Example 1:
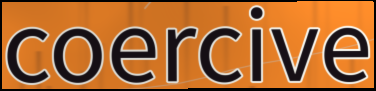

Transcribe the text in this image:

coercive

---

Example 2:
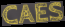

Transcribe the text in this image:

CAES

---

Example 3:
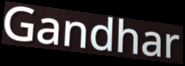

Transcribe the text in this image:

Gandhar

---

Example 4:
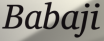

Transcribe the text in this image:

Babaji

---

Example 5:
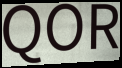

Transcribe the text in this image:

QOR